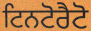
ਟਿਨਟੋਰੈਟੋ